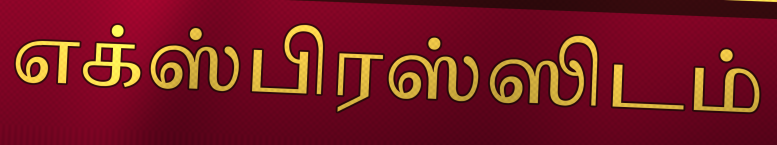
எக்ஸ்பிரஸ்ஸிடம்